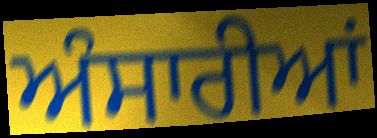
ਅੰਸਾਰੀਆਂ